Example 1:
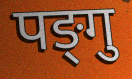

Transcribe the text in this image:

पङ्गु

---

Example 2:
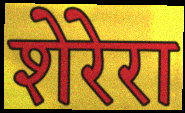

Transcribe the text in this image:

शेरेरा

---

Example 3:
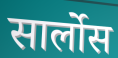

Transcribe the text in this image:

सार्लोस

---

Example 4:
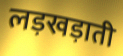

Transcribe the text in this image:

लड़खड़ाती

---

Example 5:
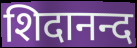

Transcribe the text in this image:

शिदानन्द